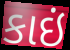
કાઇં